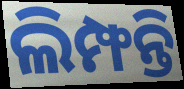
ଲିମ୍ଫନ୍ତି